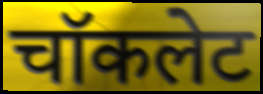
चॉकलेट